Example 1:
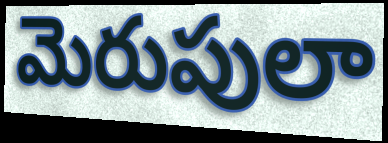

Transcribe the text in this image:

మెరుపులా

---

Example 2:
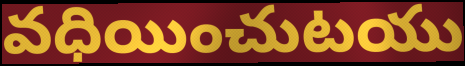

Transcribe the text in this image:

వధియించుటయు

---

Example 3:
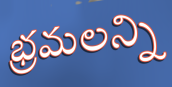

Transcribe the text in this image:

భ్రమలన్ని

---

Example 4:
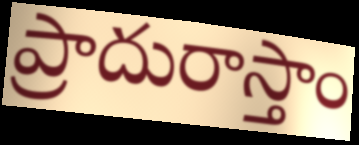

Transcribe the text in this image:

ప్రాదురాస్తాం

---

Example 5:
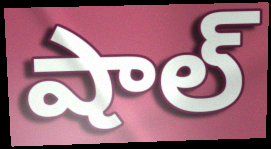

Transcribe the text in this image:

షాల్